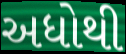
અધોથી